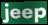
jeep